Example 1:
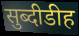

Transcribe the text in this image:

सुब्दीडीह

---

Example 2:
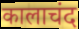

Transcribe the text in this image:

कालाचंद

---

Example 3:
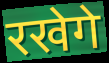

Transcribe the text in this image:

रखेगे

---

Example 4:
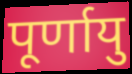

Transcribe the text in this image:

पूर्णायु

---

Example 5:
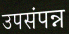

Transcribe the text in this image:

उपसंपन्न